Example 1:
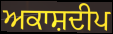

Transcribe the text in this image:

ਅਕਾਸ਼ਦੀਪ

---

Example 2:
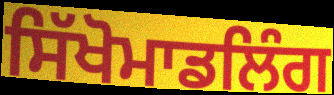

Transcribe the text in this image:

ਸਿੱਖੋਮਾਡਲਿੰਗ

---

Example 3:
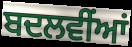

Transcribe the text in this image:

ਬਦਲਵੀਂਆਂ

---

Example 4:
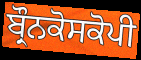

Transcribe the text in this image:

ਬ੍ਰੌਨਕੋਸਕੋਪੀ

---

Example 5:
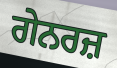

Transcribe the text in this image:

ਗੇਨਰਜ਼